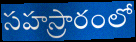
సహస్రారంలో